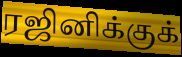
ரஜினிக்குக்